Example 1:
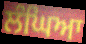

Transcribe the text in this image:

ਲੰਘਿਆ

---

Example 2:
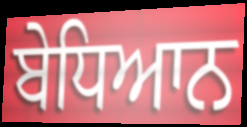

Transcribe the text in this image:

ਬੇਧਿਆਨ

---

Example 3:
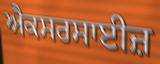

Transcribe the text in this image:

ਐਕਸਰਸਾਈਜ਼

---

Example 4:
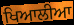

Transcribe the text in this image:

ਖਿਆਲੀਆ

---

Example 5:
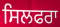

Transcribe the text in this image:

ਸਿਲਫਰਾ